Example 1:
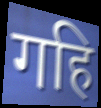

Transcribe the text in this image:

गहि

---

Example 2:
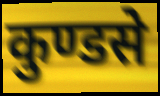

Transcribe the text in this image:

कुण्डसे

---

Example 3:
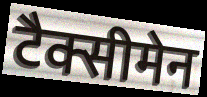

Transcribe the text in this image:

टैक्सीमेन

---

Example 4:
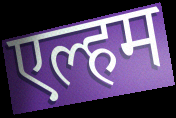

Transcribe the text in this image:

एल्हम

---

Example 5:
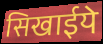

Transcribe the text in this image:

सिखाईये